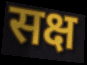
सक्ष